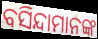
ବସିନ୍ଦାମାନଙ୍କ